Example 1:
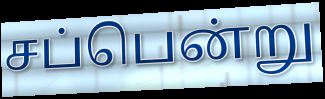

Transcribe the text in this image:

சப்பென்று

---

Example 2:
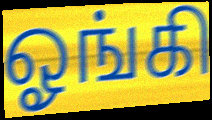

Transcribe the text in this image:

ஓங்கி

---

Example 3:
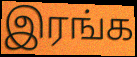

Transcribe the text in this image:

இரங்க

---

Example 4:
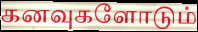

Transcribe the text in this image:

கனவுகளோடும்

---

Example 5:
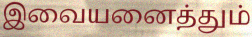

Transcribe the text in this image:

இவையனைத்தும்